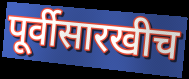
पूर्वीसारखीच